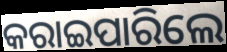
କରାଇପାରିଲେ